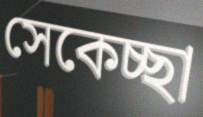
সেকেচ্ছা